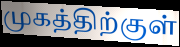
முகத்திற்குள்